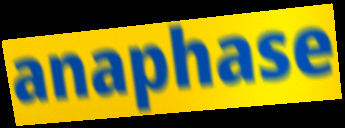
anaphase